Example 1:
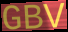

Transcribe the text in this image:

GBV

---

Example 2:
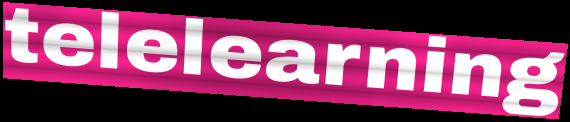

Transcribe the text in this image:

telelearning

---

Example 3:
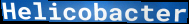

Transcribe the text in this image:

Helicobacter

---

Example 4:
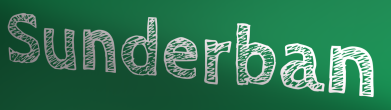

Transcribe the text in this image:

Sunderban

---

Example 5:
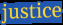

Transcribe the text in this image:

justice